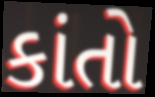
કાંતો